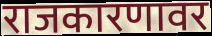
राजकारणावर